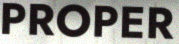
PROPER